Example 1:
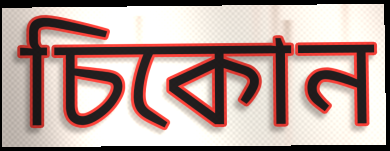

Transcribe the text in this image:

চিকোন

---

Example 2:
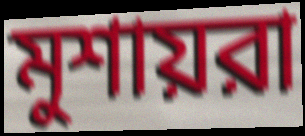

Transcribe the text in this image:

মুশায়রা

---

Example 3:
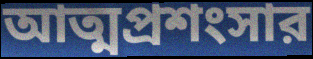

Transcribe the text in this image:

আত্মপ্রশংসার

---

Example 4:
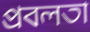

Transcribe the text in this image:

প্রবলতা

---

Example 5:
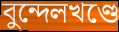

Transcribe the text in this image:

বুন্দেলখণ্ডে